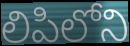
లిపిలోని